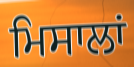
ਮਿਸਾਲਾਂ